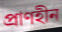
প্ৰাণহীন